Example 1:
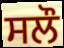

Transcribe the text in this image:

ਸਲੌ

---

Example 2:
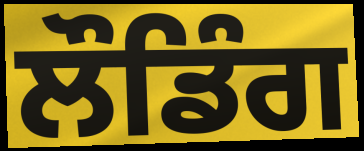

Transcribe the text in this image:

ਲੌਡਿੰਗ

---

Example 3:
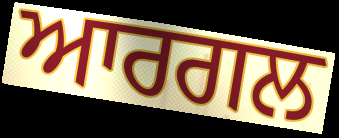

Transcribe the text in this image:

ਆਰਗਲ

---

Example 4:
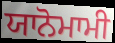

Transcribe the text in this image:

ਯਾਨੋਮਾਮੀ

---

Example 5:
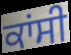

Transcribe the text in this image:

ਕਾਂਸੀ